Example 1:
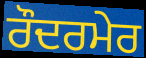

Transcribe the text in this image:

ਰੌਦਰਮੇਰ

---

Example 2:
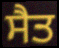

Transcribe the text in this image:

ਸੈਤ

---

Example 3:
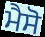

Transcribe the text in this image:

ਮੈਸੋ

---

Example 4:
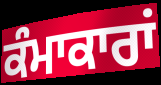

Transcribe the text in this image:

ਕੰਮਾਕਾਰਾਂ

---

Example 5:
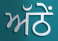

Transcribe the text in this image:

ਅੱਠੇਂ